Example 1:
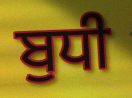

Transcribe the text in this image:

ਬੁਧੀ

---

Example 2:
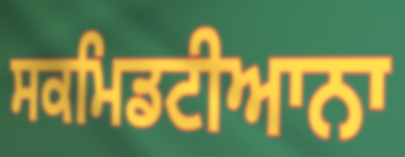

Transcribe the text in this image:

ਸਕਮਿਡਟੀਆਨਾ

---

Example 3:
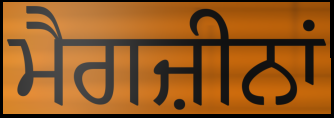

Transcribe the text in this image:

ਮੈਗਜ਼ੀਨਾਂ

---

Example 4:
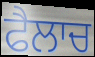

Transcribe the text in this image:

ਫੈਲਾਚ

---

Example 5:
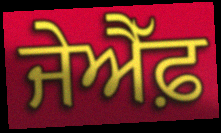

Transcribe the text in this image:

ਜੇਐੱਫ਼